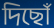
দিছোঁ